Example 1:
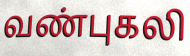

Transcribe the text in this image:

வண்புகலி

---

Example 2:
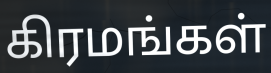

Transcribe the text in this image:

கிரமங்கள்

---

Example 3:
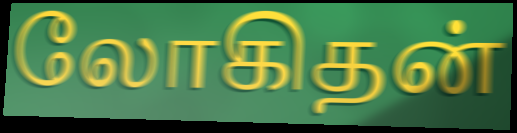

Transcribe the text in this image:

லோகிதன்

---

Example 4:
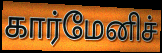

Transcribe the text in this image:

கார்மேனிச்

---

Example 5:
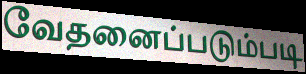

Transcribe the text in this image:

வேதனைப்படும்படி